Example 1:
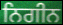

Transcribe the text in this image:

ਨਿਗੀਨ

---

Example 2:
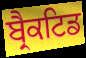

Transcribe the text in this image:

ਬ੍ਰੈਕਟਿਡ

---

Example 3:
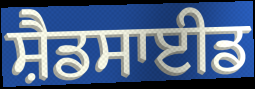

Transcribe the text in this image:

ਸ਼ੈਡਸਾਈਡ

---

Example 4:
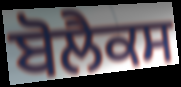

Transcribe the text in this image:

ਬੋਲੈਕਸ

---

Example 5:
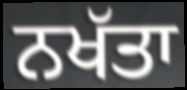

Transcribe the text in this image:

ਨਖੱਤਾ